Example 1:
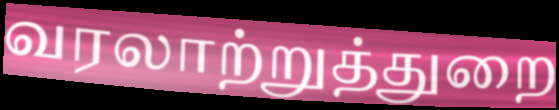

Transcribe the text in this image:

வரலாற்றுத்துறை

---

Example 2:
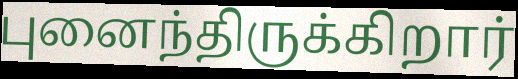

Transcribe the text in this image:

புனைந்திருக்கிறார்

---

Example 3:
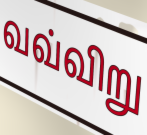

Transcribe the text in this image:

வவ்விறு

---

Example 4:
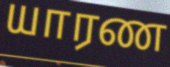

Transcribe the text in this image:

யாரண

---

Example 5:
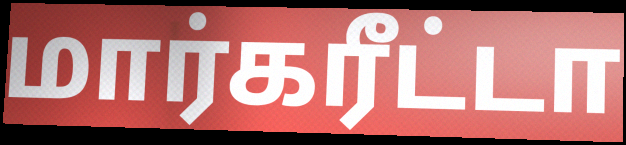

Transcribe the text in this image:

மார்கரீட்டா